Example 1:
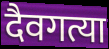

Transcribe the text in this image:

दैवगत्या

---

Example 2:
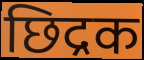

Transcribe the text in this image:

छिद्रक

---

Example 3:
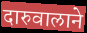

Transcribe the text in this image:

दारुवालाने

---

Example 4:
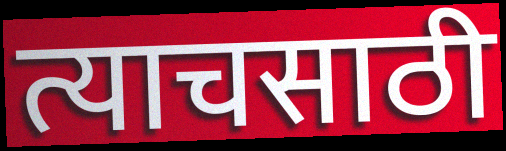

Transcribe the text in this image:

त्याचसाठी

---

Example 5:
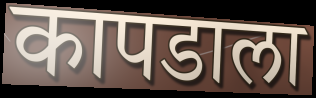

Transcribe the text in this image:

कापडाला